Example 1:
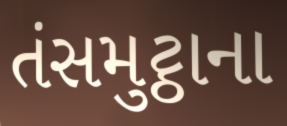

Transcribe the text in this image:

તંસમુટ્ઠાના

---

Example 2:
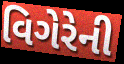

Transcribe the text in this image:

વિગેરેની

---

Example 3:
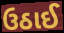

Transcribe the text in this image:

ઉઠાઈ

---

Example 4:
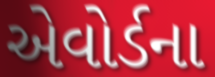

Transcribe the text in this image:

એવોર્ડના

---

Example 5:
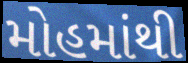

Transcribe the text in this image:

મોહમાંથી